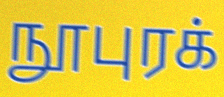
நூபுரக்